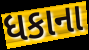
ધકાના